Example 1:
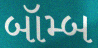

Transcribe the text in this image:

બૉમ્બ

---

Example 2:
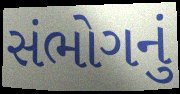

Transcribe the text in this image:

સંભોગનું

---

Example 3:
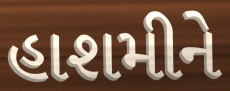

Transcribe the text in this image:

હાશમીને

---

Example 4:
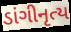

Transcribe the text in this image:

ડાંગીનૃત્ય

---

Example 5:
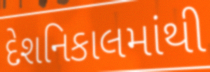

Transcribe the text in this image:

દેશનિકાલમાંથી